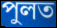
পুলত